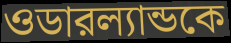
ওডারল্যান্ডকে